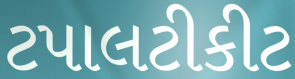
ટપાલટીકીટ